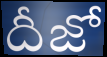
దీజో